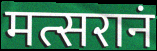
मत्सरानं